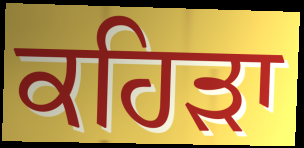
ਕਹਿੜਾ